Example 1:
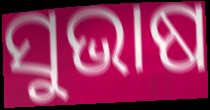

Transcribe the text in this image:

ସୁଭାଷ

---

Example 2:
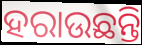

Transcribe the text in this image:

ହରାଉଛନ୍ତି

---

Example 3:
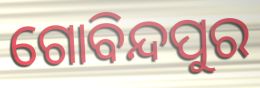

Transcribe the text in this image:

ଗୋବିନ୍ଦପୁର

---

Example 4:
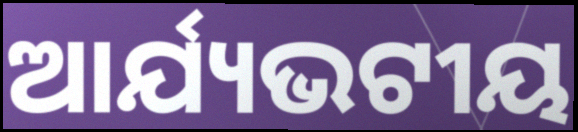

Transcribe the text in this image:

ଆର୍ଯ୍ୟଭଟୀୟ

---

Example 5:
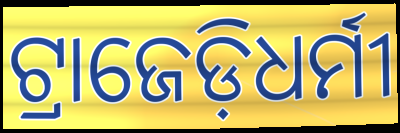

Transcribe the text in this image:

ଟ୍ରାଜେଡ଼ିଧର୍ମୀ